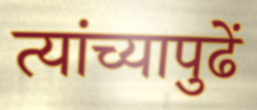
त्यांच्यापुढें